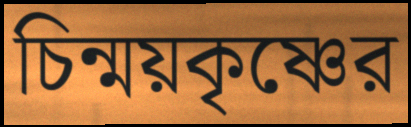
চিন্ময়কৃষ্ণের